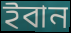
ইবান